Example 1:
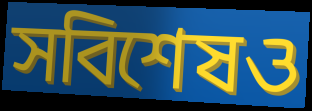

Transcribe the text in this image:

সবিশেষও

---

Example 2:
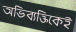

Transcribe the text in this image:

অভিব্যক্তিকেই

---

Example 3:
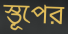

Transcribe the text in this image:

স্তূপের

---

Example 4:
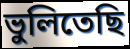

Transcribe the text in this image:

ভুলিতেছি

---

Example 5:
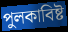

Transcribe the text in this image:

পুলকাবিষ্ট